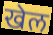
खेल